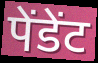
पेंडेंट